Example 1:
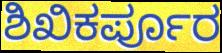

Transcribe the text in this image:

ಶಿಖಿಕರ್ಪೂರ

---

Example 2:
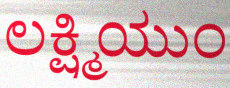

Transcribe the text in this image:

ಲಕ್ಷ್ಮಿಯುಂ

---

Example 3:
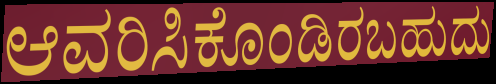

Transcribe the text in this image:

ಆವರಿಸಿಕೊಂಡಿರಬಹುದು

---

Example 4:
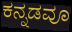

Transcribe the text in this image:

ಕನ್ನಡವೂ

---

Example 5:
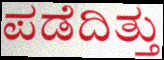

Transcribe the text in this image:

ಪಡೆದಿತ್ತು